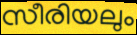
സീരിയലും